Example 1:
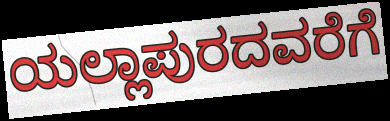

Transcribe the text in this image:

ಯಲ್ಲಾಪುರದವರೆಗೆ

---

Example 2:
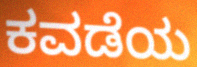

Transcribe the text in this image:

ಕವಡೆಯ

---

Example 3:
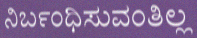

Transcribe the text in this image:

ನಿರ್ಬಂಧಿಸುವಂತಿಲ್ಲ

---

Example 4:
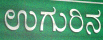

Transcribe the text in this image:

ಉಗುರಿನ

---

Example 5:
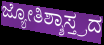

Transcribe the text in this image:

ಜ್ಯೋತಿಶ್ಶಾಸ್ತ್ರದ